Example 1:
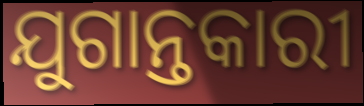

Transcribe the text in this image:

ଯୁଗାନ୍ତକାରୀ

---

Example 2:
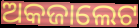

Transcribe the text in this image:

ଅକଜାଲେଟ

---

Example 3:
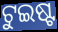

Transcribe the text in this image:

ଟୁଇଷ୍ଟ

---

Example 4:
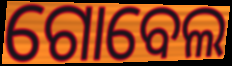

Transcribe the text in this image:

ଗୋବେଲ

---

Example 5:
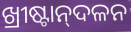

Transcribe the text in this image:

ଖ୍ରୀଷ୍ଟାନ୍‌ଦଳନ